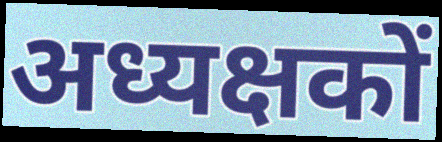
अध्यक्षकों